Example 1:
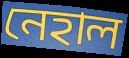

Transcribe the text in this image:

নেহাল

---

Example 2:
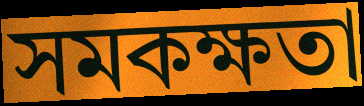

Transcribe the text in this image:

সমকক্ষতা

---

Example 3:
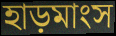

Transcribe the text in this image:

হাড়মাংস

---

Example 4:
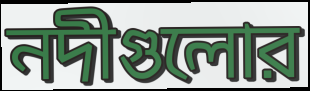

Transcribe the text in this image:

নদীগুলোর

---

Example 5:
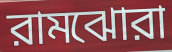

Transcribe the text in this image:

রামঝোরা